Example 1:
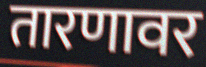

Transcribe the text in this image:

तारणावर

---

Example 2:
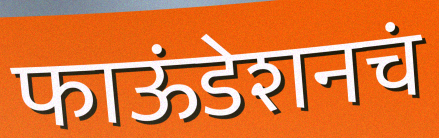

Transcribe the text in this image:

फाऊंडेशनचं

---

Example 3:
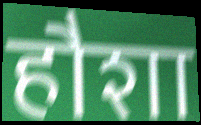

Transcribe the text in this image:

हौशा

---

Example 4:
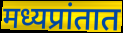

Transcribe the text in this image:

मध्यप्रांतात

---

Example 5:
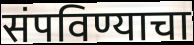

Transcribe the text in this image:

संपविण्याचा